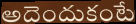
అదెందుకంటే